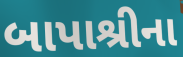
બાપાશ્રીના